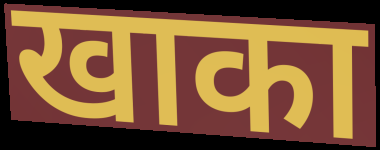
खाका